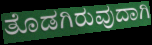
ತೊಡಗಿರುವುದಾಗಿ